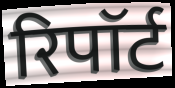
रिपॉर्ट